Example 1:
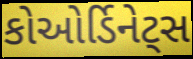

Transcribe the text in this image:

કોઓર્ડિનેટ્સ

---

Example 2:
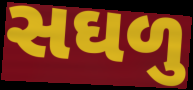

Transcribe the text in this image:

સઘળુ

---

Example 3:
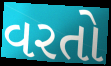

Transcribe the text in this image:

વરતો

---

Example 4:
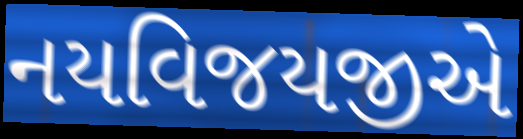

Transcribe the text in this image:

નયવિજયજીએ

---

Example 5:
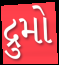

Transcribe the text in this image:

દ્રુમો